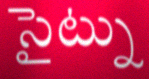
సైట్ను